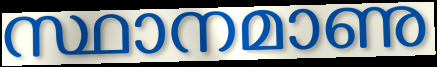
സ്ഥാനമാണു